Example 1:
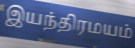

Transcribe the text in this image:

இயந்திரமயம்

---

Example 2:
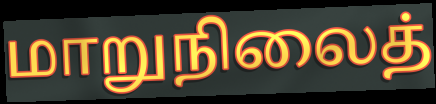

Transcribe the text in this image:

மாறுநிலைத்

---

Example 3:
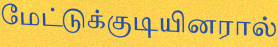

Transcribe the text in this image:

மேட்டுக்குடியினரால்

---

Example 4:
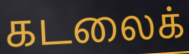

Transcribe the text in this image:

கடலைக்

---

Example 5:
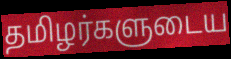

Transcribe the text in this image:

தமிழர்களுடைய